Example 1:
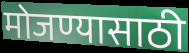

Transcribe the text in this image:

मोजण्यासाठी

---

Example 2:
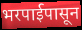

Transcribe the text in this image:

भरपाईपासून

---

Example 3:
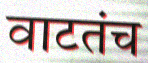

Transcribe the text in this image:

वाटतंच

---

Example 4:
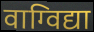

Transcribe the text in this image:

वाग्विद्या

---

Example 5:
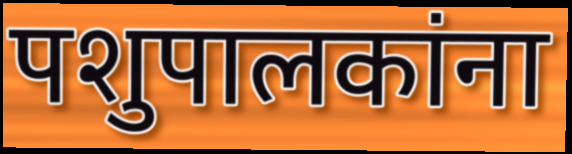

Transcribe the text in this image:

पशुपालकांना